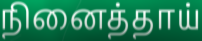
நினைத்தாய்